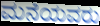
ಮನೆಯವರು